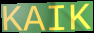
KAIK